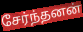
சேர்ந்தனன்